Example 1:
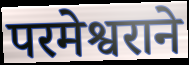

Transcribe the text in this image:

परमेश्वराने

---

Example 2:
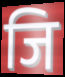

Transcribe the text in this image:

जि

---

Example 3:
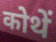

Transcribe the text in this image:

कोथें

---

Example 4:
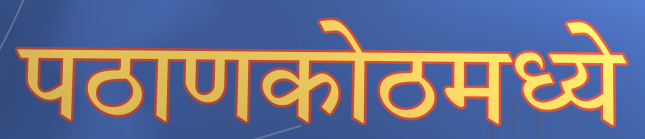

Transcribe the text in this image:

पठाणकोठमध्ये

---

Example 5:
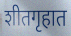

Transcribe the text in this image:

शीतगृहात